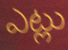
ఎట్లు